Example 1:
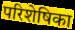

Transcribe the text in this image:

परिशेषिका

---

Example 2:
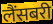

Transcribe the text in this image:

लैंसबरी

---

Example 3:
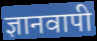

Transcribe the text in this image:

ज्ञानवापी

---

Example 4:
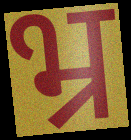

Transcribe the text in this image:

भ्र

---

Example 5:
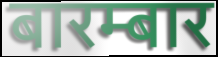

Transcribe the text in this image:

बारम्बार